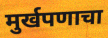
मुर्खपणाचा